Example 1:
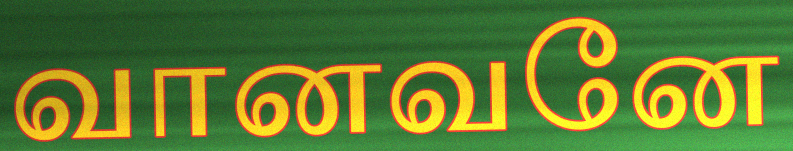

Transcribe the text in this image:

வானவனே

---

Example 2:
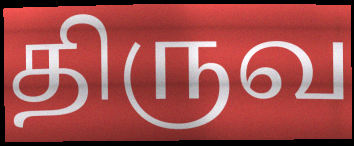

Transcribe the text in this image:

திருவ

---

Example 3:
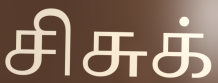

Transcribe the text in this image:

சிசுக்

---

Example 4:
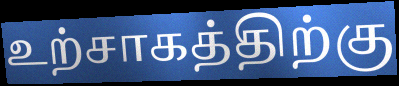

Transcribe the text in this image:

உற்சாகத்திற்கு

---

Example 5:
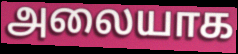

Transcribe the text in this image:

அலையாக